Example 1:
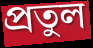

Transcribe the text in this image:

প্রতুল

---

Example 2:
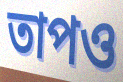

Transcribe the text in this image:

তাপও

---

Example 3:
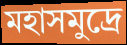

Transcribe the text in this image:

মহাসমুদ্রে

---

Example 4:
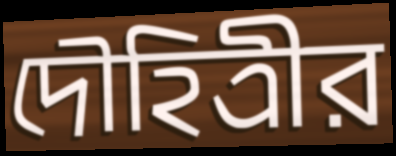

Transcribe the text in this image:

দৌহিত্রীর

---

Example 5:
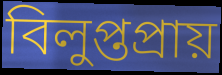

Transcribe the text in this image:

বিলুপ্তপ্রায়